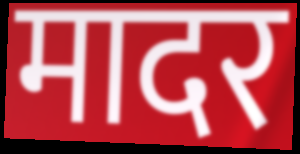
मादर